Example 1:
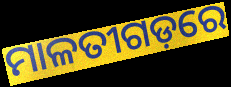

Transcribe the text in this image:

ମାଳତୀଗଡ଼ରେ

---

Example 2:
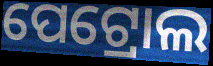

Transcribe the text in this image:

ପେଟ୍ରୋଲ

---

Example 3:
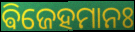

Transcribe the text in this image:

ଵିଜେହମାନଃ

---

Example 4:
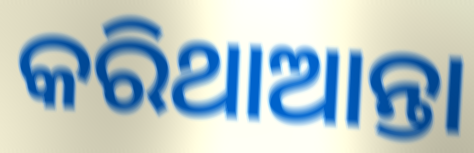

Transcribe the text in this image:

କରିଥାଆନ୍ତା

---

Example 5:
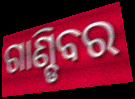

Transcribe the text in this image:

ଗାଣ୍ଡିବର